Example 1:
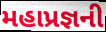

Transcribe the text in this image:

મહાપ્રજ્ઞની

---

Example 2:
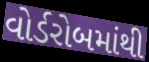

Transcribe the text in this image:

વોર્ડરોબમાંથી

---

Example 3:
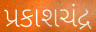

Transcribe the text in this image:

પ્રકાશચંદ્ર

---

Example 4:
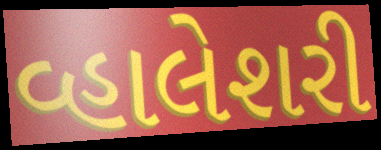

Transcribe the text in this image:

વ્હાલેશરી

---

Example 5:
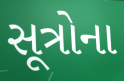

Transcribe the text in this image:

સૂત્રોના